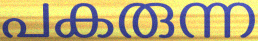
പകരുന്ന